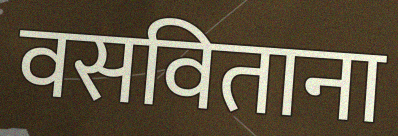
वसविताना